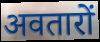
अवतारों